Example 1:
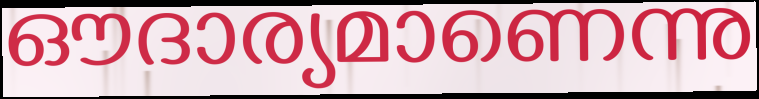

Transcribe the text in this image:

ഔദാര്യമാണെന്നു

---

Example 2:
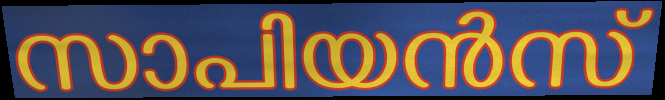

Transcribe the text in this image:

സാപിയൻസ്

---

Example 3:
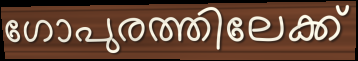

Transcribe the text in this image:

ഗോപുരത്തിലേക്ക്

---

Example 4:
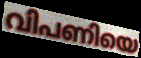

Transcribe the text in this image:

വിപണിയെ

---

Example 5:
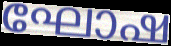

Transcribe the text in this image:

ഘോഷ